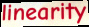
linearity